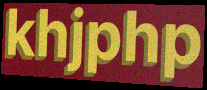
khjphp